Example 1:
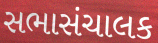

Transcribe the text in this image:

સભાસંચાલક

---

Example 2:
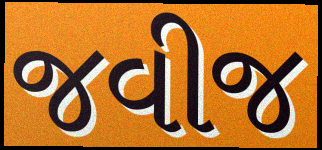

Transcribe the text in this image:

જવીજ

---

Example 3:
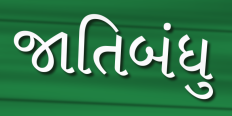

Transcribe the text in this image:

જાતિબંધુ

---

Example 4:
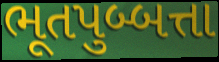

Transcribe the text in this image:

ભૂતપુબ્બત્તા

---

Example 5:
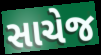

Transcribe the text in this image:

સાચેજ